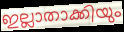
ഇല്ലാതാക്കിയും